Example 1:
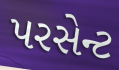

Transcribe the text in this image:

પરસેન્ટ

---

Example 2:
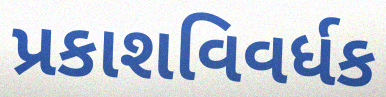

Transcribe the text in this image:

પ્રકાશવિવર્ધક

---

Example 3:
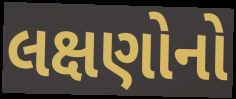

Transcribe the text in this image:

લક્ષણોનો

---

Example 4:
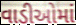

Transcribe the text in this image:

વાડીઓમાં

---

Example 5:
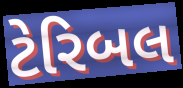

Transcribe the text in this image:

ટેરિબલ